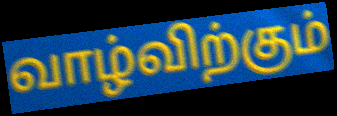
வாழ்விற்கும்